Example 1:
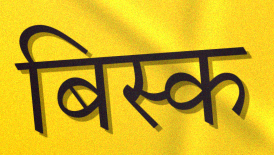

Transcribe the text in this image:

बिस्क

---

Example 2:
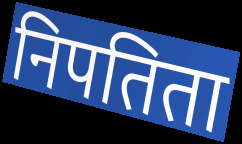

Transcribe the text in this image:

निपतिता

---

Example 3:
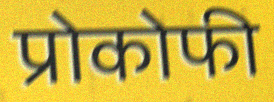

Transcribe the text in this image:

प्रोकोफी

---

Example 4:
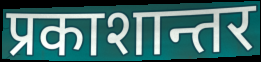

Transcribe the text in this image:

प्रकाशान्तर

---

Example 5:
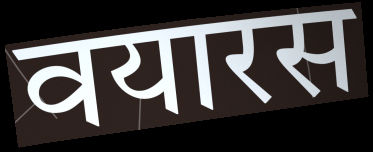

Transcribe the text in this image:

वयारस